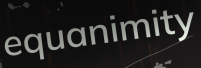
equanimity